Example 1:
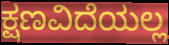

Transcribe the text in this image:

ಕ್ಷಣವಿದೆಯಲ್ಲ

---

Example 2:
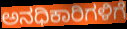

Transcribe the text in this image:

ಅನಧಿಕಾರಿಗಳಿಗೆ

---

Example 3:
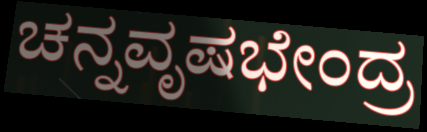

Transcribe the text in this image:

ಚನ್ನವೃಷಭೇಂದ್ರ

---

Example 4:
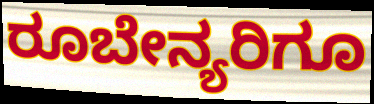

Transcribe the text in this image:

ರೂಬೇನ್ಯರಿಗೂ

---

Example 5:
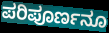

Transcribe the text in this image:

ಪರಿಪೂರ್ಣನೂ